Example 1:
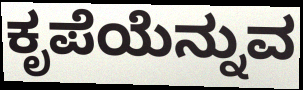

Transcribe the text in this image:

ಕೃಪೆಯೆನ್ನುವ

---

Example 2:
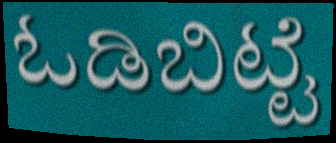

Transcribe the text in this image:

ಓಡಿಬಿಟ್ಟೆ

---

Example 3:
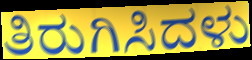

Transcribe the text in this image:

ತಿರುಗಿಸಿದಳು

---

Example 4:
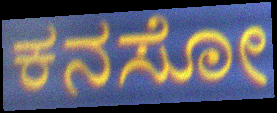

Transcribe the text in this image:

ಕನಸೋ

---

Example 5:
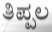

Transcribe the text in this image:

ತಿಪ್ಪಲ